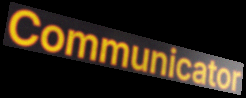
Communicator